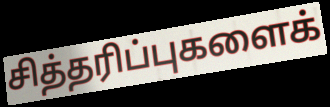
சித்தரிப்புகளைக்